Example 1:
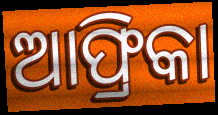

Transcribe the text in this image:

ଆଫ୍ରିକା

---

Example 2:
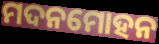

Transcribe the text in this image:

ମଦନମୋହନ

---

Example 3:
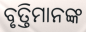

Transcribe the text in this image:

ବୃତ୍ତିମାନଙ୍କ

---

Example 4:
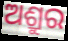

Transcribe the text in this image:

ଅଶ୍ରୁର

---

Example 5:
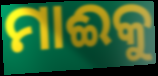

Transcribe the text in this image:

ମାଈକୁ